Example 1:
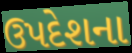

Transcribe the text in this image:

ઉપદેશના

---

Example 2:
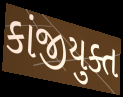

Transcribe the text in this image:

કાંજીયુક્ત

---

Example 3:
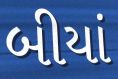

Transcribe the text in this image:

બીયાં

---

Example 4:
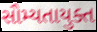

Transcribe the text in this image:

સૌમ્યતાયુક્ત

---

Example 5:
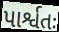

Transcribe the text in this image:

પાર્શ્વતઃ